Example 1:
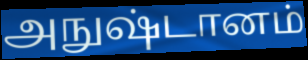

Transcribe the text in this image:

அநுஷ்டானம்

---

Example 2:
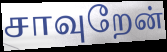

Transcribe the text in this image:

சாவுறேன்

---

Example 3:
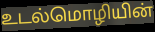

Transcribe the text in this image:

உடல்மொழியின்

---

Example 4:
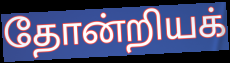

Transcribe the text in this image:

தோன்றியக்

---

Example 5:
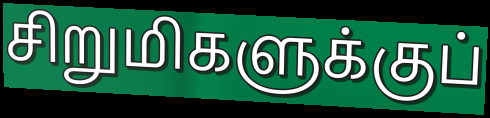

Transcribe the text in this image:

சிறுமிகளுக்குப்